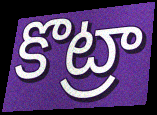
కొట్రా